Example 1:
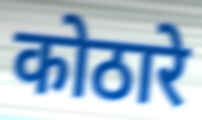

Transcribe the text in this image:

कोठारे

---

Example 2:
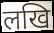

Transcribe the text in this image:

लखि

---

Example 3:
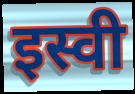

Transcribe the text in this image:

इस्वी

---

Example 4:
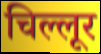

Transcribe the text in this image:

चिल्लूर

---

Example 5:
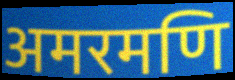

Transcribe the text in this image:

अमरमणि